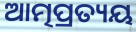
ଆତ୍ମପ୍ରତ୍ୟୟ